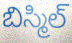
బిస్మిల్